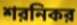
শরনিকর